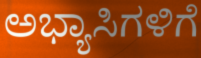
ಅಭ್ಯಾಸಿಗಳಿಗೆ